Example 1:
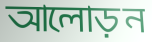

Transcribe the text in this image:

আলোড়ন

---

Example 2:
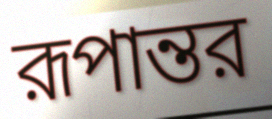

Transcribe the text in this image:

রূপান্তর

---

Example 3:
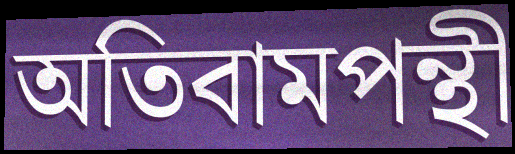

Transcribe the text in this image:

অতিবামপন্থী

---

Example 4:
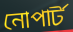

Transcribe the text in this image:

নোপার্ট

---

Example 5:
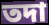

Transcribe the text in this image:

তদা